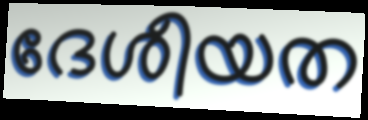
ദേശീയത